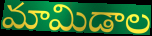
మామిడాల